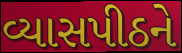
વ્યાસપીઠને